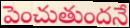
పెంచుతుందనే